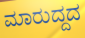
ಮಾರುದ್ದದ